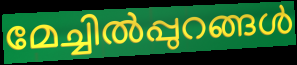
മേച്ചിൽപ്പുറങ്ങൾ